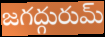
జగద్గురుమ్